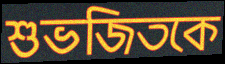
শুভজিতকে